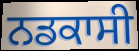
ਨਡਕਾਸੀ